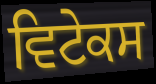
ਵਿਟੇਕਸ